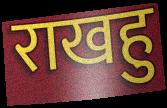
राखहु